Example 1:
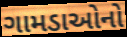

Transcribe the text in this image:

ગામડાઓનો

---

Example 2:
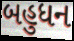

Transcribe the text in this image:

બહુધન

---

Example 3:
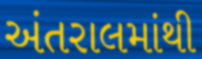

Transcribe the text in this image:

અંતરાલમાંથી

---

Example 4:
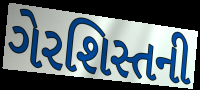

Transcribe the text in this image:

ગેરશિસ્તની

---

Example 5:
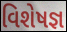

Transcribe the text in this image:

વિશેષજ્ઞ